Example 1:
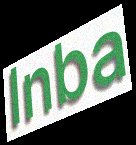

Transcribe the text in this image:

Inba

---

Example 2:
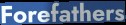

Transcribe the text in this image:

Forefathers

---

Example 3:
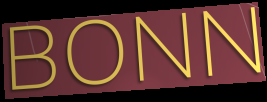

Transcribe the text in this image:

BONN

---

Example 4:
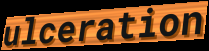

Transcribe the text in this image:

ulceration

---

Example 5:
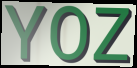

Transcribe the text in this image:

YOZ